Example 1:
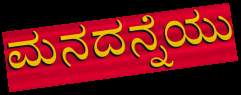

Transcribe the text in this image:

ಮನದನ್ನೆಯು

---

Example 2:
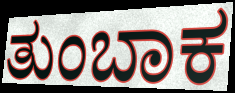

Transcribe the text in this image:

ತುಂಬಾಕ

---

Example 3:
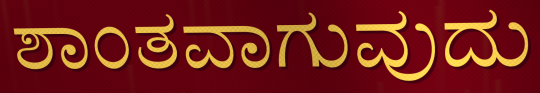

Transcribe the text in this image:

ಶಾಂತವಾಗುವುದು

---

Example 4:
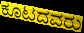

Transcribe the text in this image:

ಕೂಟದವರು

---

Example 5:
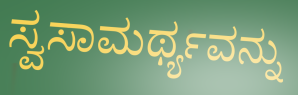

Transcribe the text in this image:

ಸ್ವಸಾಮರ್ಥ್ಯವನ್ನು